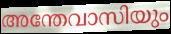
അന്തേവാസിയും